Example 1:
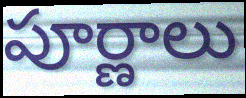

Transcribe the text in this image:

పూర్ణాలు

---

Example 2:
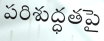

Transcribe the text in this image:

పరిశుద్ధతపై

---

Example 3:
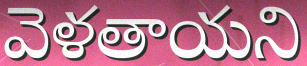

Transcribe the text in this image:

వెళతాయని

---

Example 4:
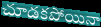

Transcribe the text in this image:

చూడకపోయినా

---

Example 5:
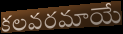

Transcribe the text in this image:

కలవరమాయే